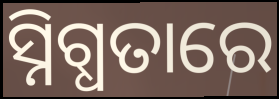
ସ୍ନିଗ୍ଧତାରେ